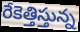
రేకెత్తిస్తున్న